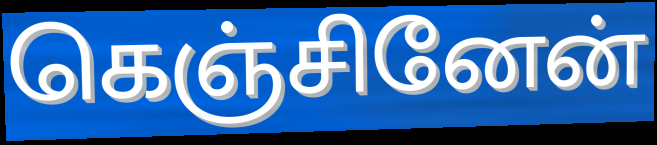
கெஞ்சினேன்